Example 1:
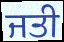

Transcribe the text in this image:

ਜਤੀ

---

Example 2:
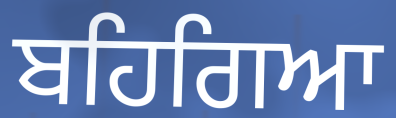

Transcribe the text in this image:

ਬਹਿਗਿਆ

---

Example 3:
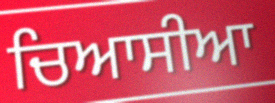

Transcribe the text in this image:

ਚਿਆਸੀਆ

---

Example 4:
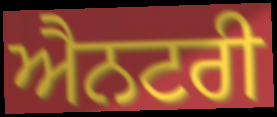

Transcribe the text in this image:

ਐਨਟਰੀ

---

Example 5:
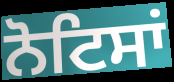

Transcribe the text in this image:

ਨੋਟਿਸਾਂ